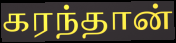
கரந்தான்